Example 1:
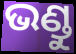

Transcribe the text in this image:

ଭଣ୍ଡୁ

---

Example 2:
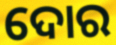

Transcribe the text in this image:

ଦୋର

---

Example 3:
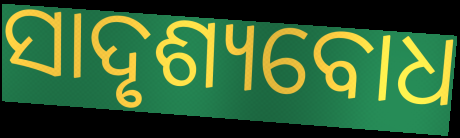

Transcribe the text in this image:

ସାଦୃଶ୍ୟବୋଧ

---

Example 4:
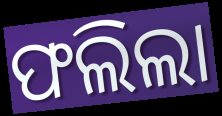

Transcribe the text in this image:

ଫଲିଲା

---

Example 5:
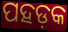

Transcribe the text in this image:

ପହଡ଼କ